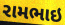
રામભાઇ